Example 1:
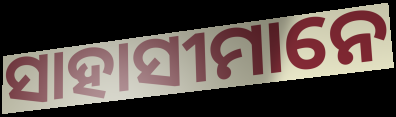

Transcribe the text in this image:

ସାହାସୀମାନେ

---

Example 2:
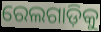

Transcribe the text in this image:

ରେଲଗାଡ଼ିକୁ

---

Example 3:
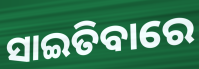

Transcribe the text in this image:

ସାଇତିବାରେ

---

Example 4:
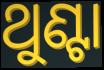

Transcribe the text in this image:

ଥୁଣ୍ଟା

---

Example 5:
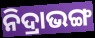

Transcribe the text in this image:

ନିଦ୍ରାଭଙ୍ଗ